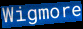
Wigmore